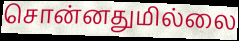
சொன்னதுமில்லை